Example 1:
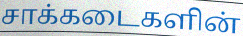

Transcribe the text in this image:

சாக்கடைகளின்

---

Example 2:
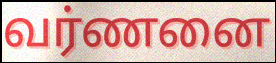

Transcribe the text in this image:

வர்ணனை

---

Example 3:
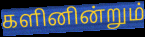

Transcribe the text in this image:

களினின்றும்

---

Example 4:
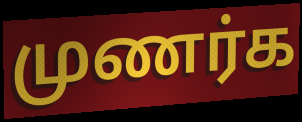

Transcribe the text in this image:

முணர்க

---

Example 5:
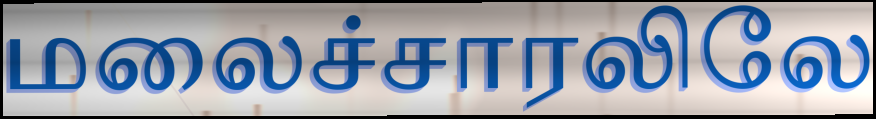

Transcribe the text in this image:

மலைச்சாரலிலே